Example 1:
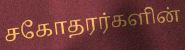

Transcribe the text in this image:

சகோதரர்களின்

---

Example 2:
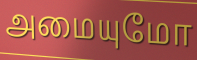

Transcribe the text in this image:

அமையுமோ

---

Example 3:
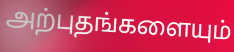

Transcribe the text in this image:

அற்புதங்களையும்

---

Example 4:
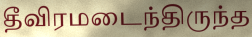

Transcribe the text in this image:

தீவிரமடைந்திருந்த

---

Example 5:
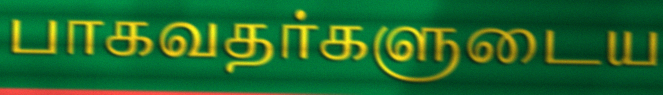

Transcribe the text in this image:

பாகவதர்களுடைய